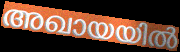
അഖായയിൽ